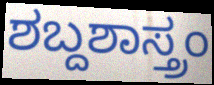
ಶಬ್ದಶಾಸ್ತ್ರಂ